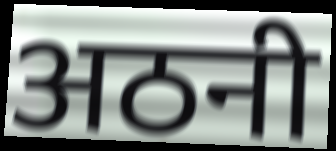
अठनी